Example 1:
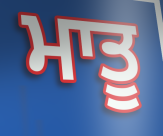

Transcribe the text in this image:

ਮਾਤੂ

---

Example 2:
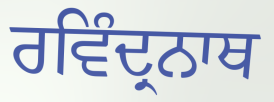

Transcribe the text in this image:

ਰਵਿੰਦ੍ਰਨਾਥ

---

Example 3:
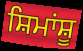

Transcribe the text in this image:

ਸ਼ਿਮਾਂਸ਼ੂ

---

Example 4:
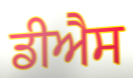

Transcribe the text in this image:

ਡੀਐਸ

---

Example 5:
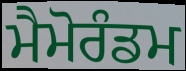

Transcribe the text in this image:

ਮੈਮੋਰੰਡਮ